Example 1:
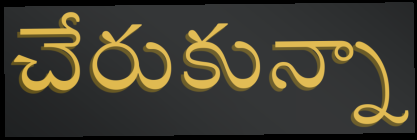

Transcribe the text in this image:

చేరుకున్నా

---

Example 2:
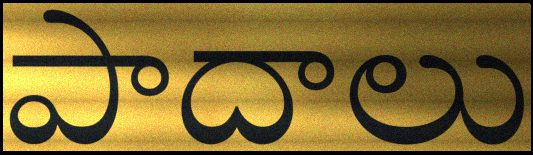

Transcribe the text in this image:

పాదాలు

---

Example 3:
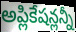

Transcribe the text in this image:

అప్లికేషన్లన్నీ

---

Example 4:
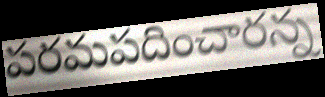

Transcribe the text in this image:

పరమపదించారన్న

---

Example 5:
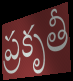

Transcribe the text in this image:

ప్రకృతీ